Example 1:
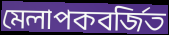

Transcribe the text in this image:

মেলাপকবর্জিত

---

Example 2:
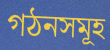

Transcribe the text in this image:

গঠনসমূহ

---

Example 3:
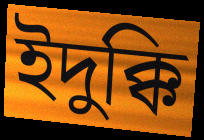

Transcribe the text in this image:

ইদুক্কি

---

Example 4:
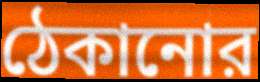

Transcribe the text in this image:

ঠেকানোর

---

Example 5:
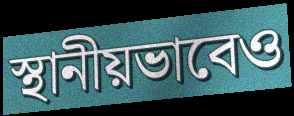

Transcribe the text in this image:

স্থানীয়ভাবেও